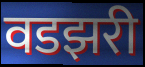
वडझरी